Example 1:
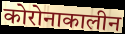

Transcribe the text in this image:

कोरोनाकालीन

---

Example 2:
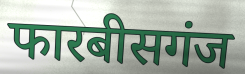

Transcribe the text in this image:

फारबीसगंज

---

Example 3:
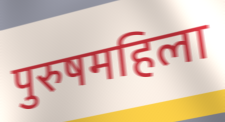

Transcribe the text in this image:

पुरुषमहिला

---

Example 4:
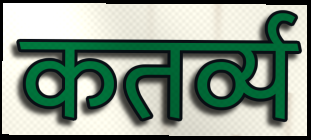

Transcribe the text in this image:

कतर्व्य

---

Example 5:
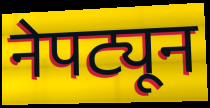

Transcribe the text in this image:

नेपट्यून